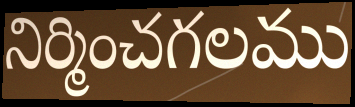
నిర్మించగలము